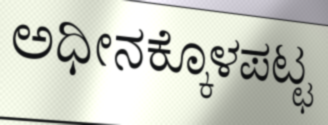
ಅಧೀನಕ್ಕೊಳಪಟ್ಟ